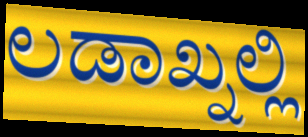
ಲಡಾಖ್ನಲ್ಲಿ